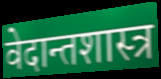
वेदान्तशास्त्र